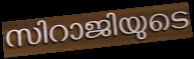
സിറാജിയുടെ